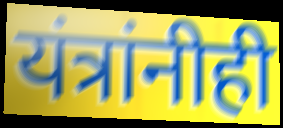
यंत्रांनीही